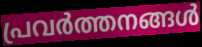
പ്രവർത്തനങ്ങൾ